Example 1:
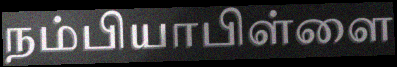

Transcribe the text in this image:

நம்பியாபிள்ளை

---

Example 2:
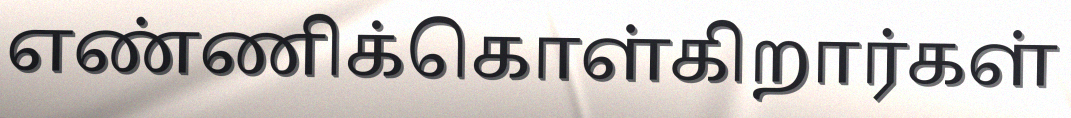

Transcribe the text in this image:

எண்ணிக்கொள்கிறார்கள்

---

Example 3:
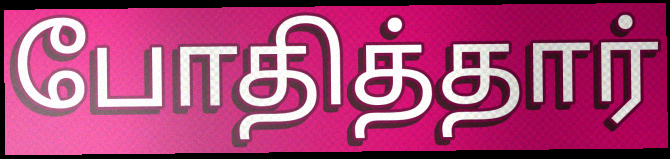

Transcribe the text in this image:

போதித்தார்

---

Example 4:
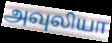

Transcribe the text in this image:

அவுலியா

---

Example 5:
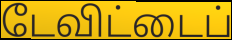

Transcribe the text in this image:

டேவிட்டைப்